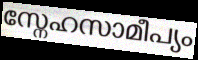
സ്നേഹസാമീപ്യം